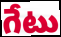
గేటు